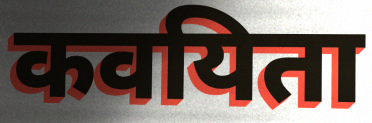
कवयिता